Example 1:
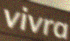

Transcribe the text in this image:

vivra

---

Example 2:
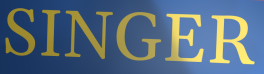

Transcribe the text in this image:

SINGER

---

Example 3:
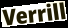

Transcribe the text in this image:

Verrill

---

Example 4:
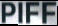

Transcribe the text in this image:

PIFF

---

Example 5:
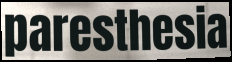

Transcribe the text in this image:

paresthesia